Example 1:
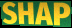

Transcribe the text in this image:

SHAP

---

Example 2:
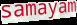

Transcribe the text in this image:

samayam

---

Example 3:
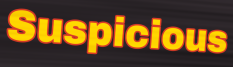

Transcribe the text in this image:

Suspicious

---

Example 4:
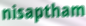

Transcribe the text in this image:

nisaptham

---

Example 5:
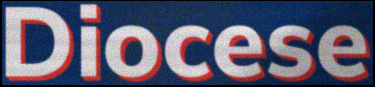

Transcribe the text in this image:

Diocese